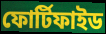
ফোর্টিফাইড